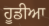
ਹੂਡੀਆ